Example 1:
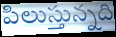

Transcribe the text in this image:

పిలుస్తున్నది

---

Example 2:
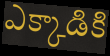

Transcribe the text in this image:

ఎక్కాడికి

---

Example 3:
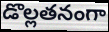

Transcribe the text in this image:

డొల్లతనంగా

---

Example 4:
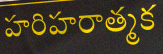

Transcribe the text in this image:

హరిహరాత్మక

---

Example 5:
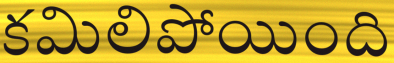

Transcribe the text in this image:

కమిలిపోయింది